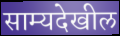
साम्यदेखील